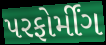
પરફોર્મીંગ